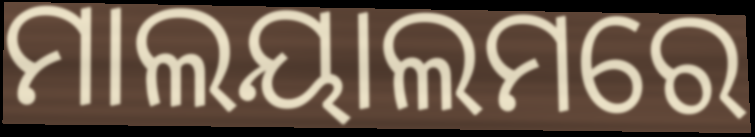
ମାଲୟାଲମରେ